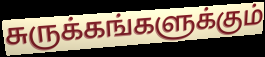
சுருக்கங்களுக்கும்